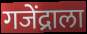
गजेंद्राला